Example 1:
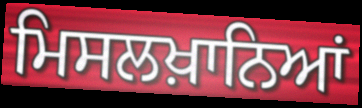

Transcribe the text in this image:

ਮਿਸਲਖ਼ਾਨਿਆਂ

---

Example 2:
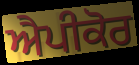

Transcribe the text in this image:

ਐਪੀਕੋਰ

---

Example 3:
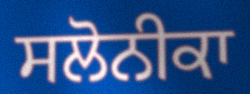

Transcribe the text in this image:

ਸਲੋਨੀਕਾ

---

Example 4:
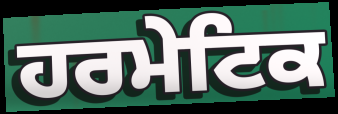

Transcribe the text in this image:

ਹਰਮੇਟਿਕ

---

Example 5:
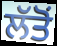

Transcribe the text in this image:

ਲੱਤੋਂ